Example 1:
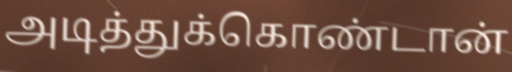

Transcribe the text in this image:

அடித்துக்கொண்டான்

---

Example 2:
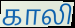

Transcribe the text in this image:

காலி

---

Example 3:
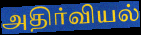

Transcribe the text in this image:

அதிர்வியல்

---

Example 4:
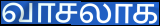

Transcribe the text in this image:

வாசலாக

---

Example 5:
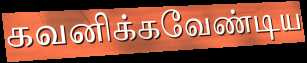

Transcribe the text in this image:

கவனிக்கவேண்டிய